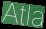
Atla